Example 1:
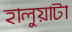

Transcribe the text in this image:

হালুয়াটা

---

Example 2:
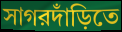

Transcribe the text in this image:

সাগরদাঁড়িতে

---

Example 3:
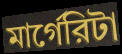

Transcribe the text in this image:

মার্গেরিটা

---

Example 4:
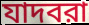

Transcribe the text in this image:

যাদবরা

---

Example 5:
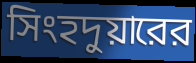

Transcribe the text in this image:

সিংহদুয়ারের